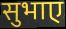
सुभाए